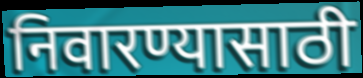
निवारण्यासाठी